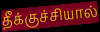
தீக்குச்சியால்